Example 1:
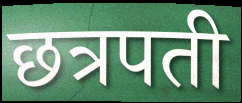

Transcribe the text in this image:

छत्रपती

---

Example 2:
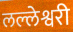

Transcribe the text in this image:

लल्लेश्वरी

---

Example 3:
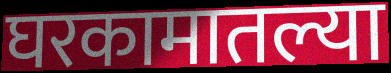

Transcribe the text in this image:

घरकामातल्या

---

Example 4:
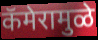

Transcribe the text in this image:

कॅमेरामुळे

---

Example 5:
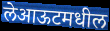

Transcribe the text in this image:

लेआऊटमधील